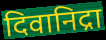
दिवानिद्रा